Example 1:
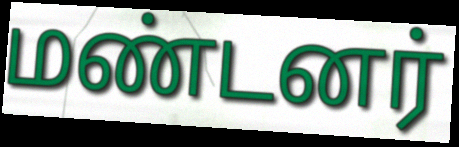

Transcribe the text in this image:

மண்டனர்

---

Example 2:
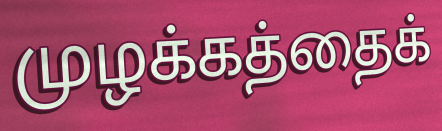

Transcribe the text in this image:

முழக்கத்தைக்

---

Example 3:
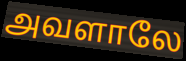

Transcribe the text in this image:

அவளாலே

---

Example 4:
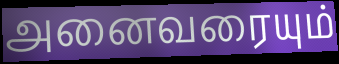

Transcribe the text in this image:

அனைவரையும்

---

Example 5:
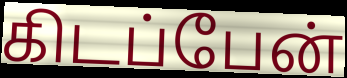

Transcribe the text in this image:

கிடப்பேன்